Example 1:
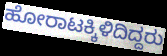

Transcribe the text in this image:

ಹೋರಾಟಕ್ಕಿಳಿದಿದ್ದರು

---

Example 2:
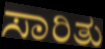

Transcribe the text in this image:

ಸಾರಿತು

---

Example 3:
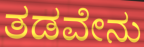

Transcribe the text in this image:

ತಡವೇನು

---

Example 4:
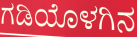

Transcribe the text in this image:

ಗಡಿಯೊಳಗಿನ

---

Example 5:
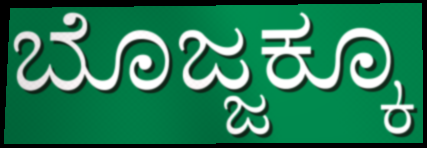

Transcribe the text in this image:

ಬೊಜ್ಜಕ್ಕೂ